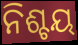
ନିଶ୍ଚୟ